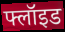
फ्लॉइड